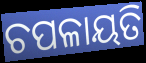
ଚପଳାୟତି